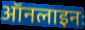
ऑनलाइनः